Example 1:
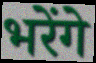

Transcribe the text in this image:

भरेंगे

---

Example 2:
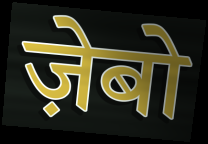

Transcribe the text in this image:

ज़ेबो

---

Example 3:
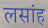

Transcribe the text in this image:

लसांह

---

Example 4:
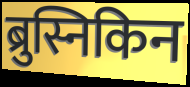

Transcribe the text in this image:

ब्रुस्निकिन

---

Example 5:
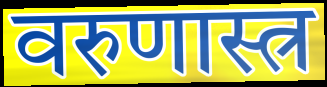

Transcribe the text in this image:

वरुणास्त्र